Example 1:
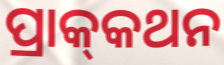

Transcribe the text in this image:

ପ୍ରାକ୍‍କଥନ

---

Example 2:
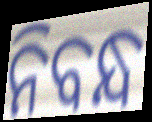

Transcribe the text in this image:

ନିବନ୍ଧ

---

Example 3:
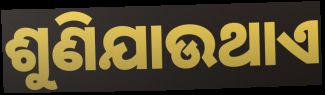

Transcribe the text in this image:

ଶୁଣିଯାଉଥାଏ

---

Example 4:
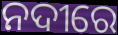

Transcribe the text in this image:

ନଦୀରେ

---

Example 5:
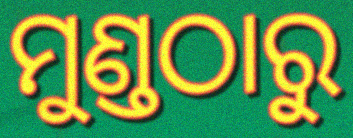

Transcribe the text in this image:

ମୁଣ୍ଡଠାରୁ